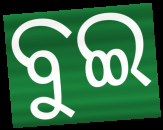
ବୁଇ